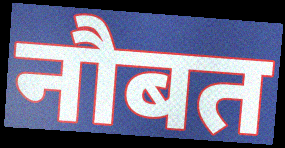
नौबत